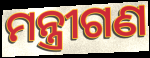
ମନ୍ତ୍ରୀଗଣ